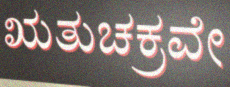
ಋತುಚಕ್ರವೇ